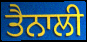
ਤੈਨਾਲੀ